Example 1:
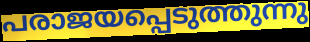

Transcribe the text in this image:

പരാജയപ്പെടുത്തുന്നു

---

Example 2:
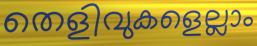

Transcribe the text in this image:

തെളിവുകളെല്ലാം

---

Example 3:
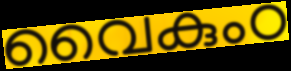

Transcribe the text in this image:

വൈകുംഠ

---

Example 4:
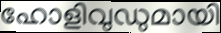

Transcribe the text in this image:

ഹോളിവുഡുമായി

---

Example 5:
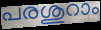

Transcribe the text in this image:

പരശുറാം